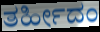
ತರ್ಹೀದಂ